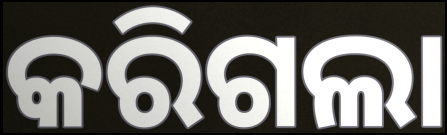
କରିଗଲା